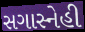
સગાસ્નેહી